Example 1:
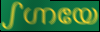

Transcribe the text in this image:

ഽഗ്നയേ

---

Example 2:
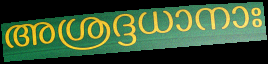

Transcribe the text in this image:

അശ്രദ്ദധാനാഃ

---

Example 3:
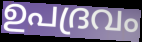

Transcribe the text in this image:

ഉപദ്രവം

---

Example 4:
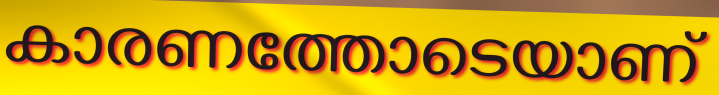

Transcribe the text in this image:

കാരണത്തോടെയാണ്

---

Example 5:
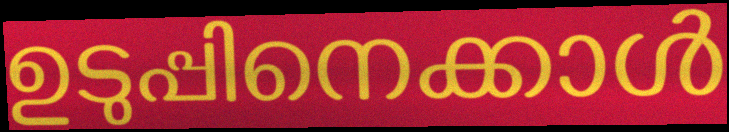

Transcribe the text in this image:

ഉടുപ്പിനെക്കാൾ